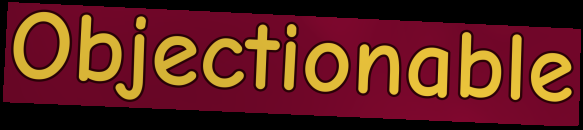
Objectionable